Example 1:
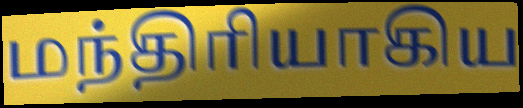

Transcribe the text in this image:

மந்திரியாகிய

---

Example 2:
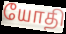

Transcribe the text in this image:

யோதி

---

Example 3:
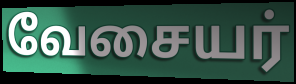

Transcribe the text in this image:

வேசையர்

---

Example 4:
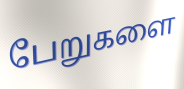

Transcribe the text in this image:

பேறுகளை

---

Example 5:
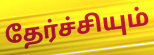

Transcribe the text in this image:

தேர்ச்சியும்